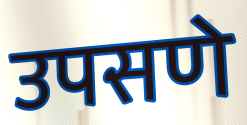
उपसणे